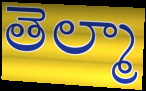
తెల్మా